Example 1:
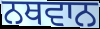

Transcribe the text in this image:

ਨਥਵਾਨ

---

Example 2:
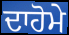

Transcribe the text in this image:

ਦਾਹੋਮੇ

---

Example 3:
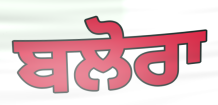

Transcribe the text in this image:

ਬਲੋਰਾ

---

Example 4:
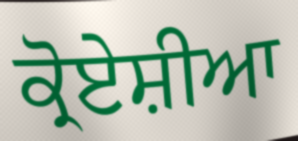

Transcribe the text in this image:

ਕ੍ਰੋਏਸ਼ੀਆ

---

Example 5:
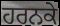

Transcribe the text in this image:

ਹਰਨਕੇ